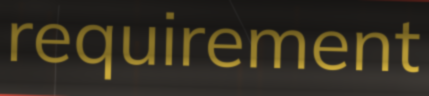
requirement